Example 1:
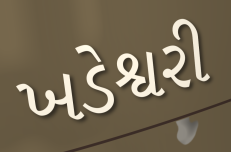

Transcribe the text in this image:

ખડેશ્વરી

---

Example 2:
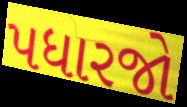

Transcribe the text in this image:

પધારજો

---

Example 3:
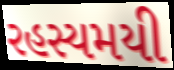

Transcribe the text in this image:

રહસ્યમયી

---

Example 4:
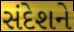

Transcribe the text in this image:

સંદેશને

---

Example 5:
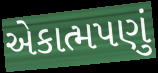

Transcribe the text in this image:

એકાત્મપણું